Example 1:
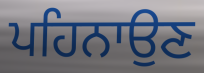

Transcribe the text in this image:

ਪਹਿਨਾਉਣ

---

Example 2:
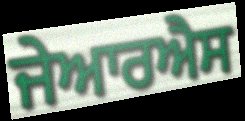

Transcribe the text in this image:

ਜੇਆਰਐਸ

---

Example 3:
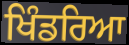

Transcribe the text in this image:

ਖਿੰਡਰਿਆ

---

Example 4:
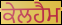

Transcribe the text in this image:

ਕੇਲਹੈਮ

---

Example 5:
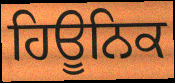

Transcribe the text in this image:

ਹਿਊਨਿਕ